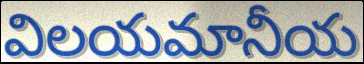
విలయమానీయ